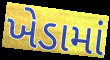
ખેડામાં